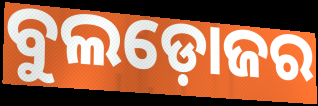
ବୁଲଡ଼ୋଜର